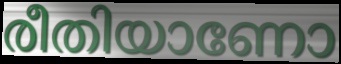
രീതിയാണോ